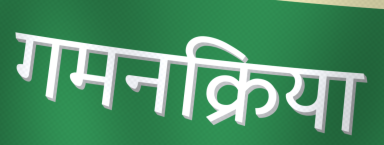
गमनक्रिया